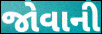
જોવાની